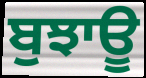
ਬੁਝਾਊ